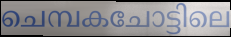
ചെമ്പകചോട്ടിലെ